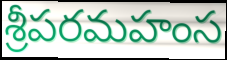
శ్రీపరమహంస